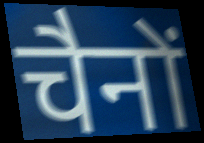
चैनों